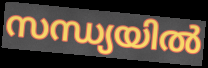
സന്ധ്യയിൽ